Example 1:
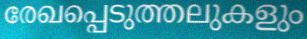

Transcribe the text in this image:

രേഖപ്പെടുത്തലുകളും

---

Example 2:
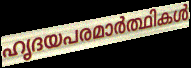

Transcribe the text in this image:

ഹൃദയപരമാർത്ഥികൾ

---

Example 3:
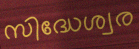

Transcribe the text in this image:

സിദ്ധേശ്വര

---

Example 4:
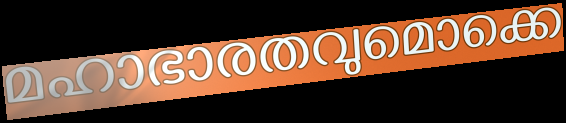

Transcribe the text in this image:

മഹാഭാരതവുമൊക്കെ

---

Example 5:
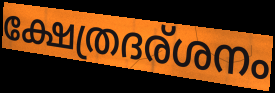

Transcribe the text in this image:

ക്ഷേത്രദര്ശനം